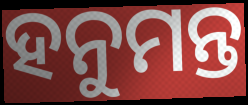
ହନୁମନ୍ତ